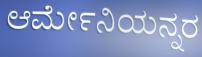
ಆರ್ಮೇನಿಯನ್ನರ